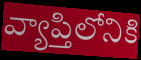
వ్యాప్తిలోనికి